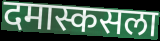
दमास्कसला